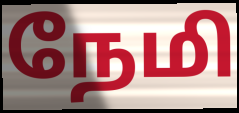
நேமி